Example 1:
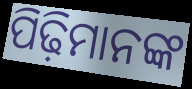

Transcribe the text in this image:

ପିଢ଼ିମାନଙ୍କ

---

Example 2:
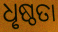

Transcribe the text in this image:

ଧୃଷ୍ଠତା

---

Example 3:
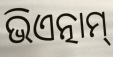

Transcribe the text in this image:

ଭିଏତ୍ନାମ୍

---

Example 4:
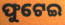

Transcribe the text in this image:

ଫୁଟେଇ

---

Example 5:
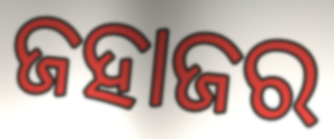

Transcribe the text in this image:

ଜହାଜର